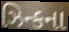
ઝિન્કના